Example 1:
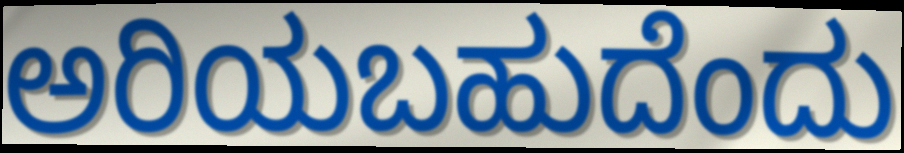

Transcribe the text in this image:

ಅರಿಯಬಹುದೆಂದು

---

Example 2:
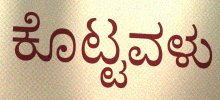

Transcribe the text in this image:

ಕೊಟ್ಟವಳು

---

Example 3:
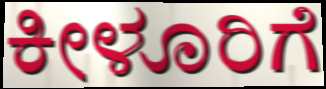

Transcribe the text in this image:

ಕೀಳೂರಿಗೆ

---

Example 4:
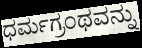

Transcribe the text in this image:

ಧರ್ಮಗ್ರಂಥವನ್ನು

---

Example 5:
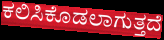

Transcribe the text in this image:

ಕಲಿಸಿಕೊಡಲಾಗುತ್ತದೆ